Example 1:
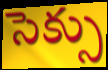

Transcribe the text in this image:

సెక్సు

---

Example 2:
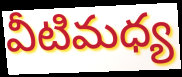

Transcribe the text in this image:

వీటిమధ్య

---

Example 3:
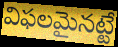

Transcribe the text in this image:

విఫలమైనట్టే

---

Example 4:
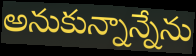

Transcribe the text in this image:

అనుకున్నాన్నేను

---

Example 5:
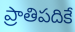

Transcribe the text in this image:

ప్రాతిపదికే